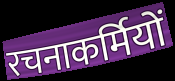
रचनाकर्मियों